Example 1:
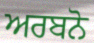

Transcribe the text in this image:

ਅਰਬਨੋ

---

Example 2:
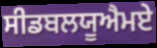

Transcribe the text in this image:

ਸੀਡਬਲਯੂਐਮਏ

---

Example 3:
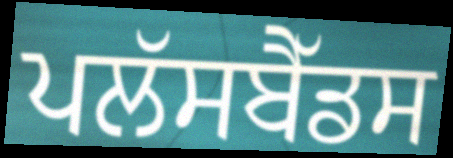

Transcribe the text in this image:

ਪਲੱਸਬੈੱਡਸ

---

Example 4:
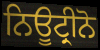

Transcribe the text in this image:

ਨਿਊਟ੍ਰੀਨੋ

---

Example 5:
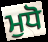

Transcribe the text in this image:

ਮੁਧੋ